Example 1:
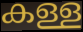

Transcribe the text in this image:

കള്ള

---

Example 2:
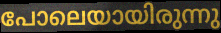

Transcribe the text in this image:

പോലെയായിരുന്നു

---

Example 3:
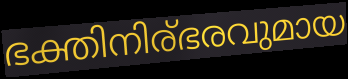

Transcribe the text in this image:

ഭക്തിനിര്ഭരവുമായ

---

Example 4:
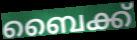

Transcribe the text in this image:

ബൈക്ക്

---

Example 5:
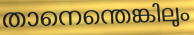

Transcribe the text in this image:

താനെന്തെങ്കിലും